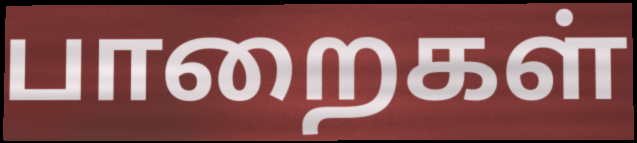
பாறைகள்